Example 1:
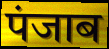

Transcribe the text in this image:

पंजाब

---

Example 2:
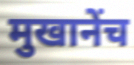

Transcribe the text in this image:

मुखानेंच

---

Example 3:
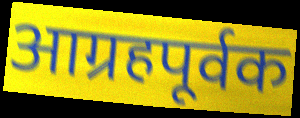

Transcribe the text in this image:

आग्रहपूर्वक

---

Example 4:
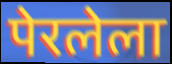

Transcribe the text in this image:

पेरलेला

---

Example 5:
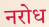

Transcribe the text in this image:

नरोध